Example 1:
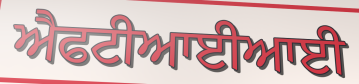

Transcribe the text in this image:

ਐਫਟੀਆਈਆਈ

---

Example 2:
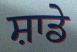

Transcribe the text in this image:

ਸ਼ਾਡੇ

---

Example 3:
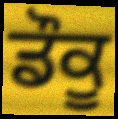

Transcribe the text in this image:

ਡੌਕੂ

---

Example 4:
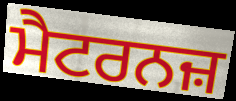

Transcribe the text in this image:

ਮੈਟਰਨਜ਼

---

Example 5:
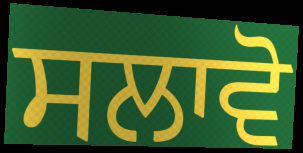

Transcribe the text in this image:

ਸਲਾਵੋ